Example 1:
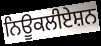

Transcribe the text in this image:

ਨਿਊਕਲੀਏਸ਼ਨ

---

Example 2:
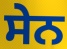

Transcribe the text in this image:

ਸੇਨ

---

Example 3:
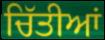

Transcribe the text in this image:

ਚਿੱਤੀਆਂ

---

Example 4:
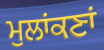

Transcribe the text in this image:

ਮੁਲਾਂਕਣਾਂ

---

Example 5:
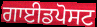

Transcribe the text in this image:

ਗਾਈਡਪੋਸਟ